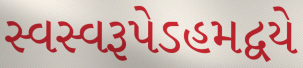
સ્વસ્વરૂપેઽહમદ્વયે